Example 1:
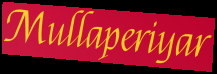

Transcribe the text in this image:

Mullaperiyar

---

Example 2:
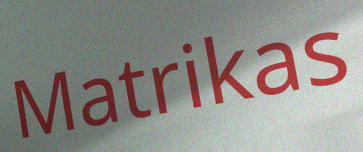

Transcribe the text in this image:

Matrikas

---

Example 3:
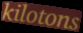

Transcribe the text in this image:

kilotons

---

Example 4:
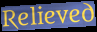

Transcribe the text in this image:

Relieved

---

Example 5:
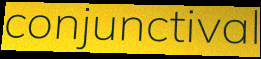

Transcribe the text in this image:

conjunctival